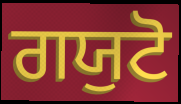
ਗਯੁਟੋ